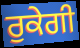
ਰੁਕੇਗੀ